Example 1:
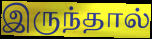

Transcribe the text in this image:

இருந்தால்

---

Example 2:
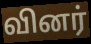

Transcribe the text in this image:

வினர்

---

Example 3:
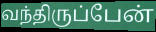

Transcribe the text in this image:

வந்திருப்பேன்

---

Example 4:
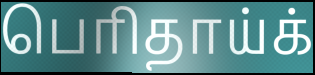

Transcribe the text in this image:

பெரிதாய்க்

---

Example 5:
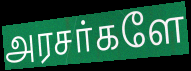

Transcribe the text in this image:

அரசர்களே